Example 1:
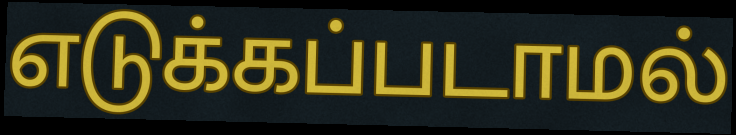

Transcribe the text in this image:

எடுக்கப்படாமல்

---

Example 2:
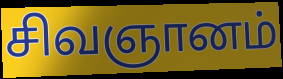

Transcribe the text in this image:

சிவஞானம்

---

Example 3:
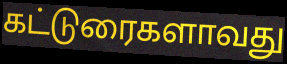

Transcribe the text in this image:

கட்டுரைகளாவது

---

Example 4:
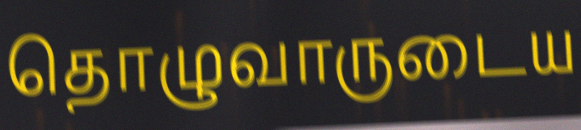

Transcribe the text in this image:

தொழுவாருடைய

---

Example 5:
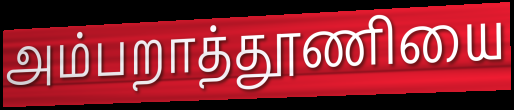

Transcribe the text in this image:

அம்பறாத்தூணியை